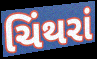
ચિંથરાં